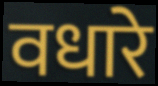
वधारे